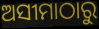
ଅସୀମାଠାରୁ